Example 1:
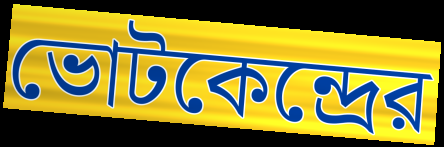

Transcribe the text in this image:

ভোটকেন্দ্রের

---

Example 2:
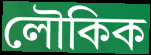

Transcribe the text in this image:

লৌকিক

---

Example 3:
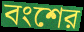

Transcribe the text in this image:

বংশের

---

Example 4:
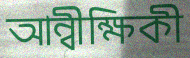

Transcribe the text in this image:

আন্বীক্ষিকী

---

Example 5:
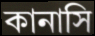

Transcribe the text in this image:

কানাসি